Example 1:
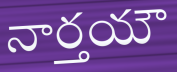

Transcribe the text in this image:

నార్తయౌ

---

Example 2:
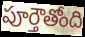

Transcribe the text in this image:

పూర్తౌతోంది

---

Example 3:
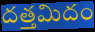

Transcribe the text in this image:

దత్తమిదం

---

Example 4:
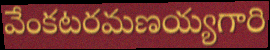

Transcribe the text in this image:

వేంకటరమణయ్యగారి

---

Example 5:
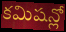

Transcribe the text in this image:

కమిషన్లో